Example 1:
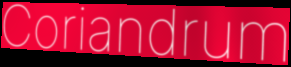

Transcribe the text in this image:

Coriandrum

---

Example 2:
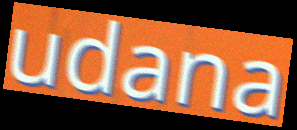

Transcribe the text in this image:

udana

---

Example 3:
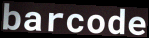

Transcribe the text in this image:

barcode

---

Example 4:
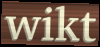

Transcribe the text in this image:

wikt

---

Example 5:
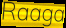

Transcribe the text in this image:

Raaga